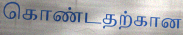
கொண்டதற்கான